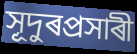
সূদুৰপ্ৰসাৰী